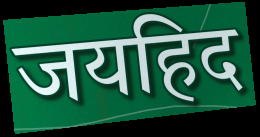
जयहिद